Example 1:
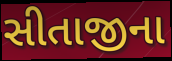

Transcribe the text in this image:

સીતાજીના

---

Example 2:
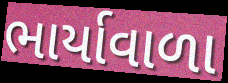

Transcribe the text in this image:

ભાર્યાવાળા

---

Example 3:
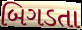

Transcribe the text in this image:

બિગડતા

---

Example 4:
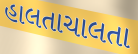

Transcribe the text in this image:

હાલતાચાલતા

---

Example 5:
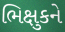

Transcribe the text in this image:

ભિક્ષુકને